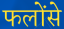
फलोंसे